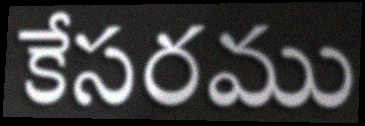
కేసరము